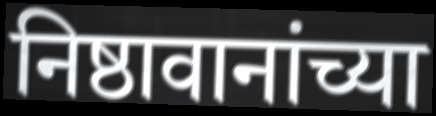
निष्ठावानांच्या